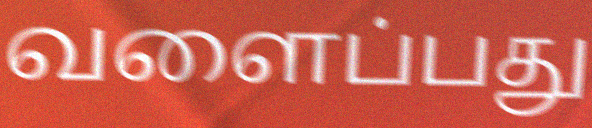
வளைப்பது